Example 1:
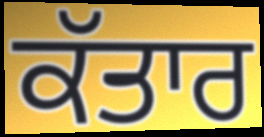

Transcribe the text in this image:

ਕੱਤਾਰ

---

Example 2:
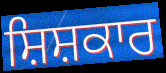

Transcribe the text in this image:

ਸ਼ਿਸ਼ਕਾਰ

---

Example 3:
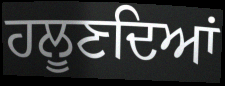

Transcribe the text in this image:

ਹਲੂਣਦਿਆਂ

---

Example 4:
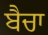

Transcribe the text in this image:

ਬੈਚਾ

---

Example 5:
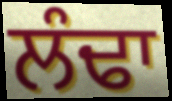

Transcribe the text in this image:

ਲੰਢਾ